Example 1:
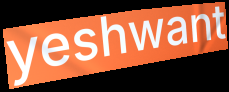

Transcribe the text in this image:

yeshwant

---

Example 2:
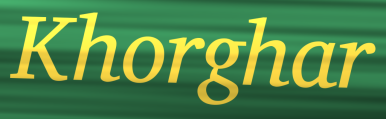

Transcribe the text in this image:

Khorghar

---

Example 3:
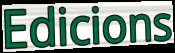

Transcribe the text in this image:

Edicions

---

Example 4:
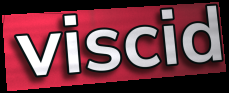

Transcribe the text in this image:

viscid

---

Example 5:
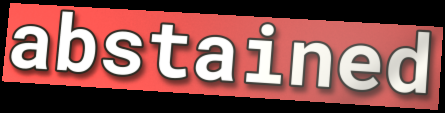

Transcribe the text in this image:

abstained